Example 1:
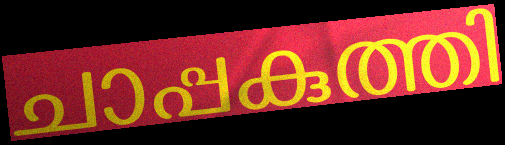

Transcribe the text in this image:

ചാപ്പകുത്തി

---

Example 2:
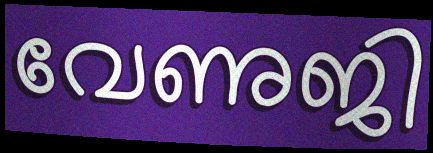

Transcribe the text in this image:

വേണുജി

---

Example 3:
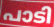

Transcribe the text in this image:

പാടി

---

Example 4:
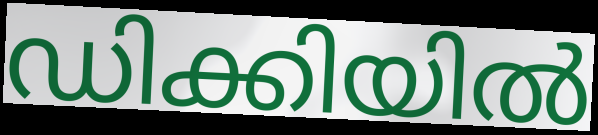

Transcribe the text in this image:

ഡിക്കിയിൽ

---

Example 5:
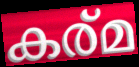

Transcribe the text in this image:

കര്മ